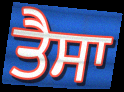
ਤੈਸਾ